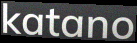
katano